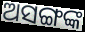
ଅସଙ୍ଗଙ୍କ